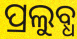
ପ୍ରଲୁବ୍ଧ